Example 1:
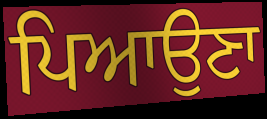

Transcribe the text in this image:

ਪਿਆਉਣਾ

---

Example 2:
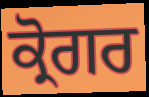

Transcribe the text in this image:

ਕ੍ਰੋਗਰ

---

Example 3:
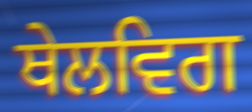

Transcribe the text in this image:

ਥੇਲਵਿਗ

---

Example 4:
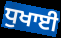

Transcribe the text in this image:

ਧੁਖਾਈ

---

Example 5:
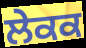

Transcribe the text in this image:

ਲੇਕਕ